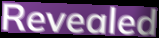
Revealed